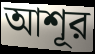
আশূর